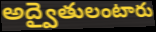
అద్వైతులంటారు